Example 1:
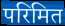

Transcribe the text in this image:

परिमित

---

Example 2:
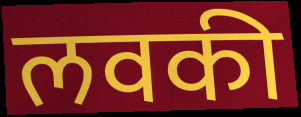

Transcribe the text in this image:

लवकी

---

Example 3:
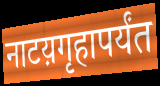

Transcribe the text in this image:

नाटय़गृहापर्यंत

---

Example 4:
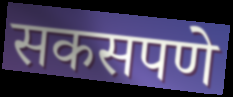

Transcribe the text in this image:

सकसपणे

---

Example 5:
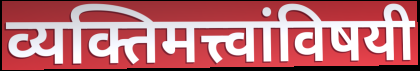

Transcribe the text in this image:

व्यक्तिमत्त्वांविषयी